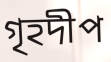
গৃহদীপ